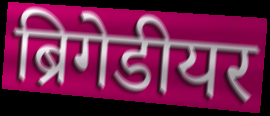
ब्रिगेडीयर